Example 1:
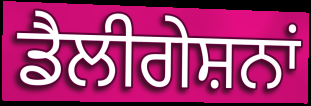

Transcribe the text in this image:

ਡੈਲੀਗੇਸ਼ਨਾਂ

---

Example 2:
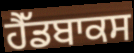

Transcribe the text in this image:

ਹੈੱਡਬਾਕਸ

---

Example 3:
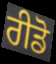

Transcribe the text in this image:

ਰੀਡੋ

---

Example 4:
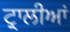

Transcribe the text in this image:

ਟ੍ਰਾਲੀਆਂ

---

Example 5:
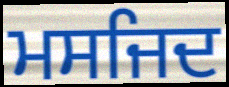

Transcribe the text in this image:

ਮਸਜਿਦ